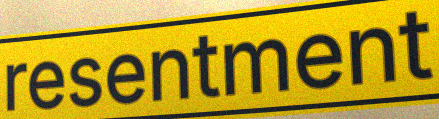
resentment